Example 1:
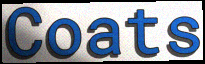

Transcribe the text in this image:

Coats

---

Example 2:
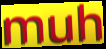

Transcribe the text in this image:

muh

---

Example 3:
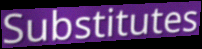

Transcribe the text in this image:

Substitutes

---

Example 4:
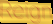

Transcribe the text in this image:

Reign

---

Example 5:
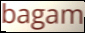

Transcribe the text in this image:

bagam